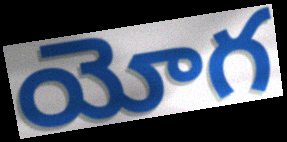
యోగ